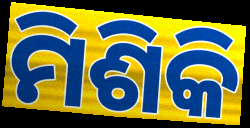
ମିଶିକି